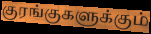
குரங்குகளுக்கும்